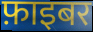
फ़ाइबर